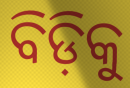
ବିଡ଼ିକୁ